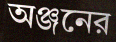
অঞ্জনের